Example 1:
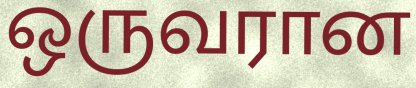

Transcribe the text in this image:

ஒருவரான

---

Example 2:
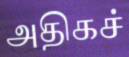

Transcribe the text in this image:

அதிகச்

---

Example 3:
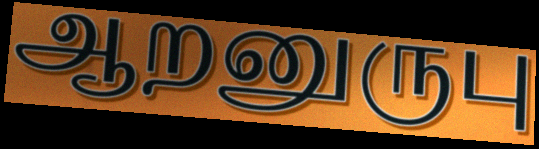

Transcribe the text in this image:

ஆறனுருபு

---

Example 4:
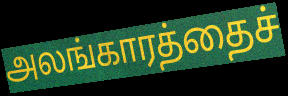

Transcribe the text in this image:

அலங்காரத்தைச்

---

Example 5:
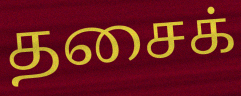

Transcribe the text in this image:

தசைக்